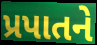
પ્રપાતને